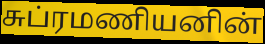
சுப்ரமணியனின்